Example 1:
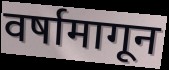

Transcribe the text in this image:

वर्षामागून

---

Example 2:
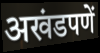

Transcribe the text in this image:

अखंडपणें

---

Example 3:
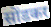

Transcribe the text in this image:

सोंडकर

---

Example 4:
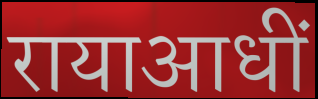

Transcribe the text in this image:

रायाआधीं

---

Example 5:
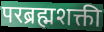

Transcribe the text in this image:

परब्रह्मशक्ती